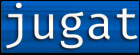
jugat